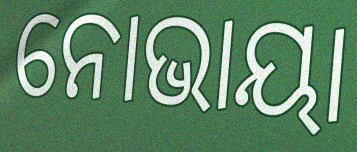
ନୋଭାୟା